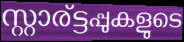
സ്റ്റാര്ട്ടപ്പുകളുടെ